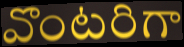
వొంటరిగా